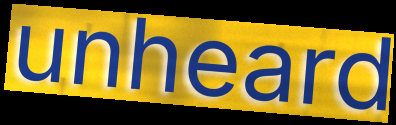
unheard